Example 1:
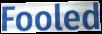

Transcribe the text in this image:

Fooled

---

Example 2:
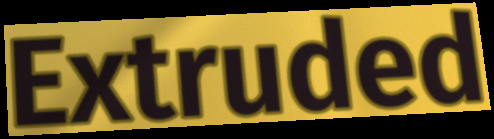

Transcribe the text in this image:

Extruded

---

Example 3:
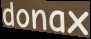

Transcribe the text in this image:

donax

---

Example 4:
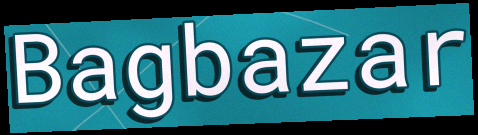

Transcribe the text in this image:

Bagbazar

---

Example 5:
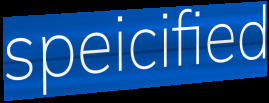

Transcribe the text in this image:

speicified